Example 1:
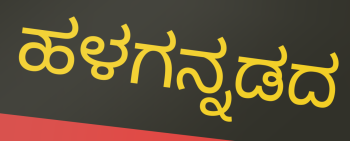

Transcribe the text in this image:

ಹಳಗನ್ನಡದ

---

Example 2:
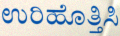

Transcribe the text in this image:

ಉರಿಹೊತ್ತಿಸಿ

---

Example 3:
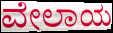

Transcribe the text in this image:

ವೇಲಾಯ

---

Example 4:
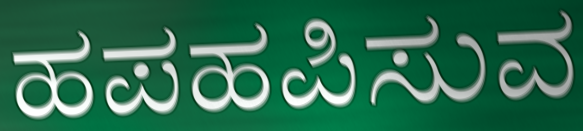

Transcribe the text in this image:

ಹಪಹಪಿಸುವ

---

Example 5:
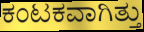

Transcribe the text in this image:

ಕಂಟಕವಾಗಿತ್ತು